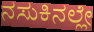
ನಸುಕಿನಲ್ಲೇ